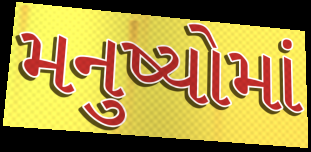
મનુષ્યોમાં